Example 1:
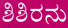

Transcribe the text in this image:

ಶಿಶಿರನು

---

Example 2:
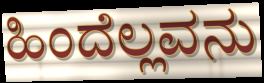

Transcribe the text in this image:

ಹಿಂದೆಲ್ಲವನು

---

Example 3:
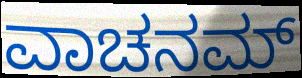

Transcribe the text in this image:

ವಾಚನಮ್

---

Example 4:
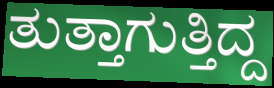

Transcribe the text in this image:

ತುತ್ತಾಗುತ್ತಿದ್ದ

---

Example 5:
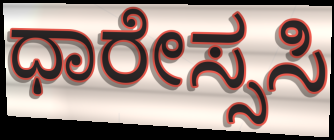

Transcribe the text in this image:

ಧಾರೇಸ್ಸಸಿ